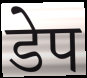
डेप